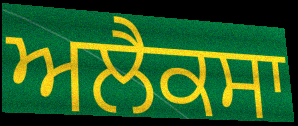
ਅਲੈਕਸਾ